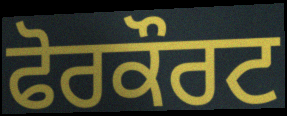
ਫੋਰਕੌਰਟ